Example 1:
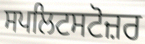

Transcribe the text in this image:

ਸਪਲਿਟਸਟੋਜ਼ਰ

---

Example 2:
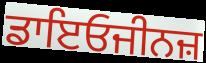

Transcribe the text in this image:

ਡਾਇਓਜੀਨਜ਼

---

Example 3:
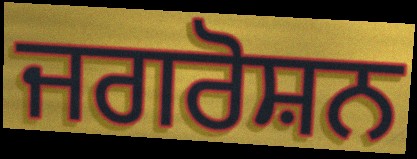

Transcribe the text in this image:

ਜਗਰੋਸ਼ਨ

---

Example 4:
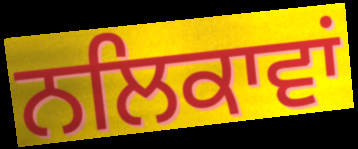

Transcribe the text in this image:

ਨਲਿਕਾਵਾਂ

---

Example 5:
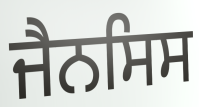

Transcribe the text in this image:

ਜੈਨਸਿਸ